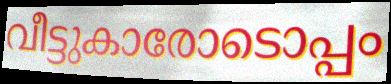
വീട്ടുകാരോടൊപ്പം